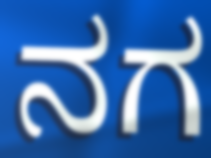
ನಗ